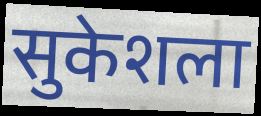
सुकेशला